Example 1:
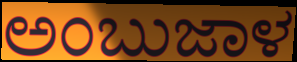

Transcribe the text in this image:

ಅಂಬುಜಾಳ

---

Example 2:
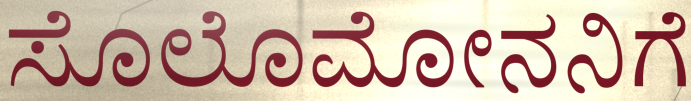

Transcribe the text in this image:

ಸೊಲೊಮೋನನಿಗೆ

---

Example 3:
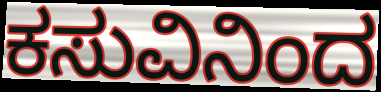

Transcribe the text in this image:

ಕಸುವಿನಿಂದ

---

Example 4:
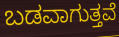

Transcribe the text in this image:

ಬಡವಾಗುತ್ತವೆ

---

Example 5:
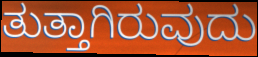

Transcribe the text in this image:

ತುತ್ತಾಗಿರುವುದು